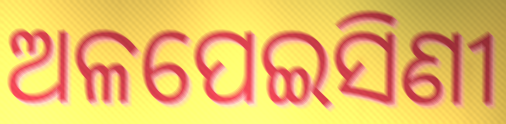
ଅଳପେଇସିଣୀ